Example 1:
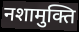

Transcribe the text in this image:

नशामुक्ति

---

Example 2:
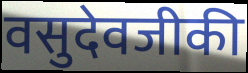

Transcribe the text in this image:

वसुदेवजीकी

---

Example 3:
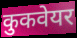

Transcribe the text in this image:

कुकवेयर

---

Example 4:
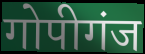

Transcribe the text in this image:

गोपीगंज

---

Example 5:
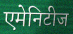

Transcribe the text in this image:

एमेनिटीज